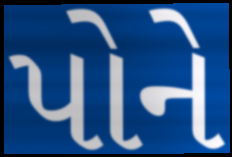
પોને